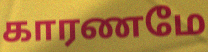
காரணமே